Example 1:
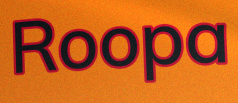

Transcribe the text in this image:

Roopa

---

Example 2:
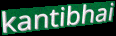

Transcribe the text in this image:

kantibhai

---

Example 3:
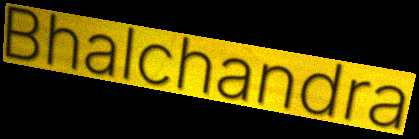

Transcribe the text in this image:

Bhalchandra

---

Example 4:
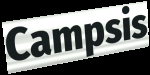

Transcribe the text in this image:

Campsis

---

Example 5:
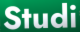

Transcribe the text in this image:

Studi